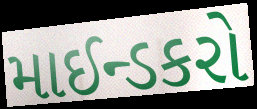
માઈન્ડકરો